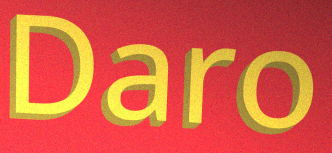
Daro